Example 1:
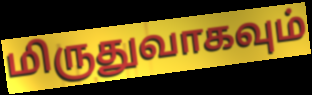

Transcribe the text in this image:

மிருதுவாகவும்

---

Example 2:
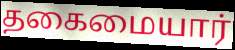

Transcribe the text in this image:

தகைமையார்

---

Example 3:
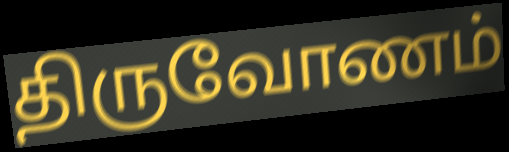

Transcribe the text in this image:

திருவோணம்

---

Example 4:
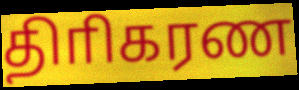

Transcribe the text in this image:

திரிகரண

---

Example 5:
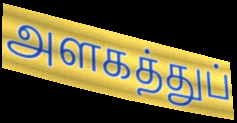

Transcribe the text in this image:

அளகத்துப்